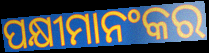
ପକ୍ଷୀମାନଂକର